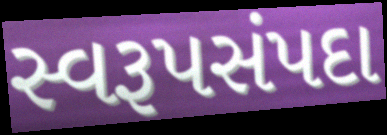
સ્વરૂપસંપદા